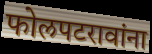
फोलपटरावांना